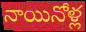
నాయినోళ్ల